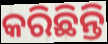
କରିଛିନ୍ତି